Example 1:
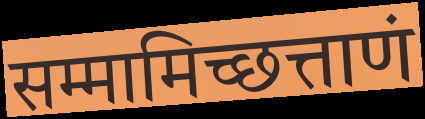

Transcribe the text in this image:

सम्मामिच्छत्ताणं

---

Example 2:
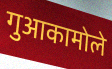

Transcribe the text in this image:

गुआकामोले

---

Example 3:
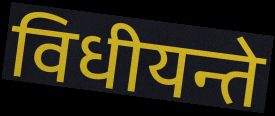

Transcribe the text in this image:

विधीयन्ते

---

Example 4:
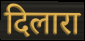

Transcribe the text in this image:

दिलारा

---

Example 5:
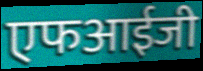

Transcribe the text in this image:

एफआईजी